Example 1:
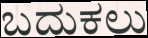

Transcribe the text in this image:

ಬದುಕಲು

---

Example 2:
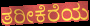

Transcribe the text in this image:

ತರೀಕೆರೆಯ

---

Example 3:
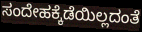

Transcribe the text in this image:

ಸಂದೇಹಕ್ಕೆಡೆಯಿಲ್ಲದಂತೆ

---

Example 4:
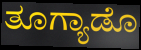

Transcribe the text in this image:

ತೂಗ್ಯಾಡೊ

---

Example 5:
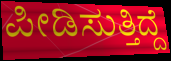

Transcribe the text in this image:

ಪೀಡಿಸುತ್ತಿದ್ದೆ